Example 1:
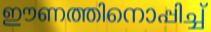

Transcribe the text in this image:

ഈണത്തിനൊപ്പിച്ച്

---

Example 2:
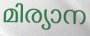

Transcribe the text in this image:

മിര്യാന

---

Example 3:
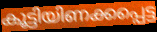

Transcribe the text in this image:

കൂട്ടിയിണക്കപ്പെട്ട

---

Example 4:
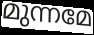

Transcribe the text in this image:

മുന്നമേ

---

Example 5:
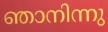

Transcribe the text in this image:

ഞാനിന്നു